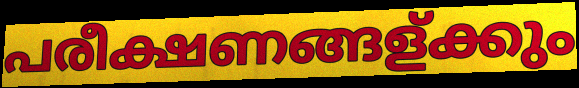
പരീക്ഷണങ്ങള്ക്കും